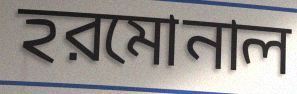
হরমোনাল